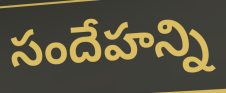
సందేహన్ని